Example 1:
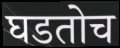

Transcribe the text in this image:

घडतोच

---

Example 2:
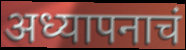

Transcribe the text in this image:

अध्यापनाचं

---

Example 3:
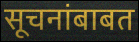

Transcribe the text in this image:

सूचनांबाबत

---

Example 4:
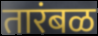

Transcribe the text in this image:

तारंबळ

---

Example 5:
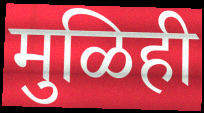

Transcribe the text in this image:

मुळिही